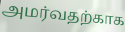
அமர்வதற்காக